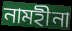
নামহীনা